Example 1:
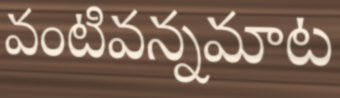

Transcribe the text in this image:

వంటివన్నమాట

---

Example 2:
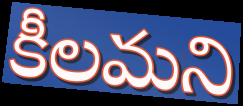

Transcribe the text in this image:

కీలమని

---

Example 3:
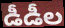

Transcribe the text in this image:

డీడీల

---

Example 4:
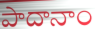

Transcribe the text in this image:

పాదానాం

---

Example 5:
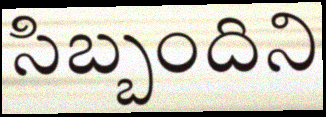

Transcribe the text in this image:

సిబ్బందిని